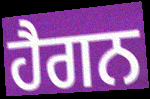
ਹੈਗਨ